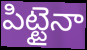
పిట్టైనా